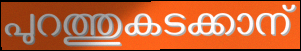
പുറത്തുകടക്കാന്